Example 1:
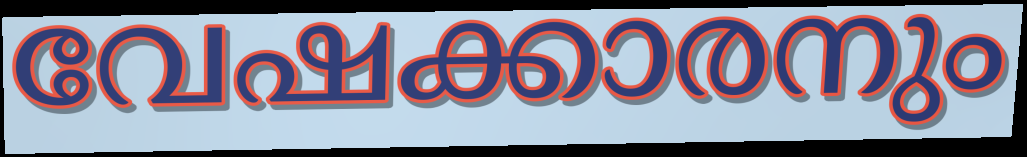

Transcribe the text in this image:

വേഷക്കാരനും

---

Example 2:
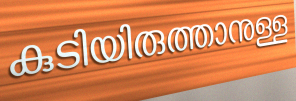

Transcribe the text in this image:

കുടിയിരുത്താനുള്ള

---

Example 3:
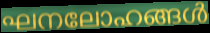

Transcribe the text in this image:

ഘനലോഹങ്ങൾ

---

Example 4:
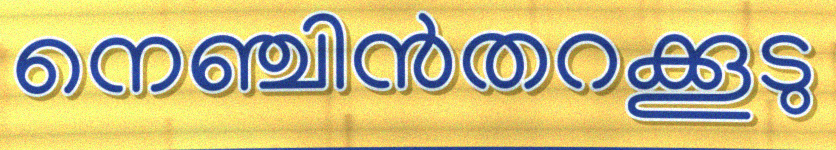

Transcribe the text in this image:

നെഞ്ചിൻതറക്കൂടു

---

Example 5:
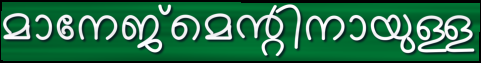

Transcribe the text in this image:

മാനേജ്മെന്റിനായുള്ള